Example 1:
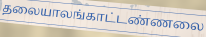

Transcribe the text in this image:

தலையாலங்காட்டண்ணலை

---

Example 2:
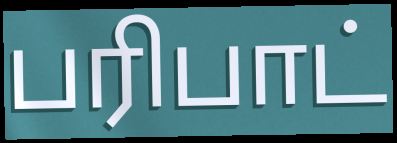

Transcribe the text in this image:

பரிபாட்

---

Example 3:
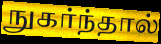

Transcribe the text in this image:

நுகர்ந்தால்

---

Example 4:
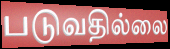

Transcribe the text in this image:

படுவதில்லை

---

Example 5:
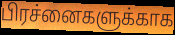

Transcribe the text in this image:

பிரச்னைகளுக்காக